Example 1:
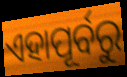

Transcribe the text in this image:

ଏହାପୂର୍ବରୁ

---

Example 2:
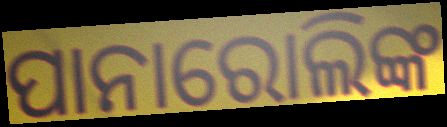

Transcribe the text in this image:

ପାନାରୋଲିଙ୍କ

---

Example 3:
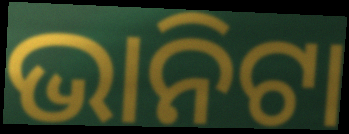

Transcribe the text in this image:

ଭାନିଟା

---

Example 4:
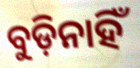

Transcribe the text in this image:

ବୁଡ଼ିନାହିଁ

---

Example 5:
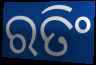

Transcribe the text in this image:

ରତିଂ